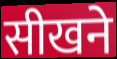
सीखने